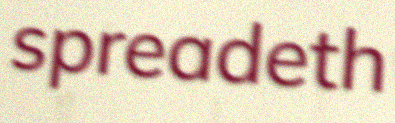
spreadeth